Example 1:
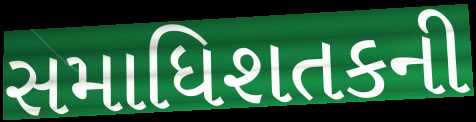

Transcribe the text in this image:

સમાધિશતકની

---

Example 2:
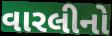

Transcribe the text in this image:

વારલીનો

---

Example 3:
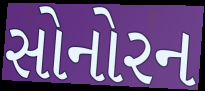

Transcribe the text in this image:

સોનોરન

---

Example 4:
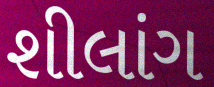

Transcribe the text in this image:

શીલાંગ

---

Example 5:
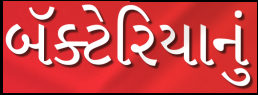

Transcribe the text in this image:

બૅક્ટેરિયાનું